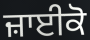
ਜ਼ਾਈਕੋ